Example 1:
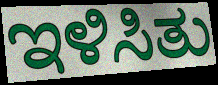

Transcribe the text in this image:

ಇಳಿಸಿತು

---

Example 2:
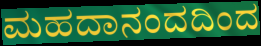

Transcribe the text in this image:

ಮಹದಾನಂದದಿಂದ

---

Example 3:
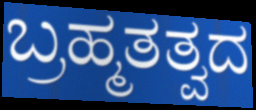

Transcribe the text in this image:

ಬ್ರಹ್ಮತತ್ವದ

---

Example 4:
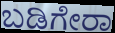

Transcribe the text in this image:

ಬಡಿಗೇರಾ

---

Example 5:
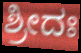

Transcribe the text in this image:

ಶ್ರೀದಃ